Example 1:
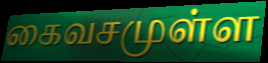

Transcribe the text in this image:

கைவசமுள்ள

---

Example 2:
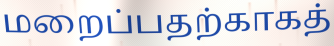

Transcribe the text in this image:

மறைப்பதற்காகத்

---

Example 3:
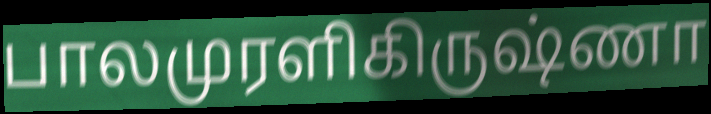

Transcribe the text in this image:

பாலமுரளிகிருஷ்ணா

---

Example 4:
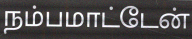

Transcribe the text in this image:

நம்பமாட்டேன்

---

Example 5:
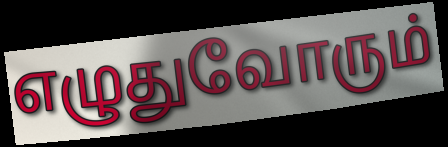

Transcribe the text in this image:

எழுதுவோரும்